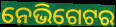
ନେଭିଗେଟର